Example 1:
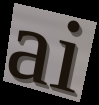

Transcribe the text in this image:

ai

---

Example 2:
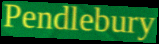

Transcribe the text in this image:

Pendlebury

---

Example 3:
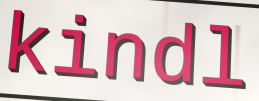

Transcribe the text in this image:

kindl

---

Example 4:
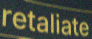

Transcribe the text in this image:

retaliate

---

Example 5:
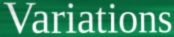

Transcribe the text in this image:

Variations